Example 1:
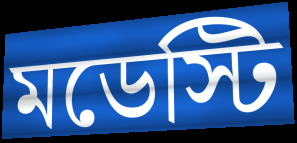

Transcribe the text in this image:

মডেস্টি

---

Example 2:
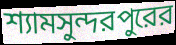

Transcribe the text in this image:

শ্যামসুন্দরপুরের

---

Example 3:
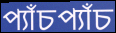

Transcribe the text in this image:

প্যাঁচপ্যাঁচ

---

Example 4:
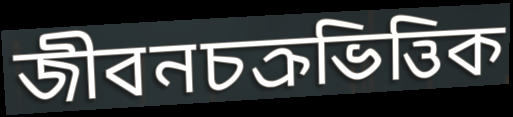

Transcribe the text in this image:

জীবনচক্রভিত্তিক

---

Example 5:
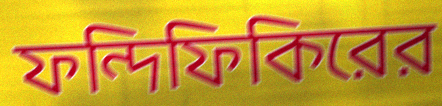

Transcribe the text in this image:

ফন্দিফিকিরের